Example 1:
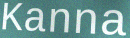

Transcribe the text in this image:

Kanna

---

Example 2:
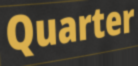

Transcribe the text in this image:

Quarter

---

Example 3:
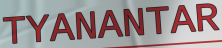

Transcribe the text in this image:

TYANANTAR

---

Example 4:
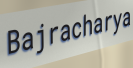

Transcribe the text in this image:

Bajracharya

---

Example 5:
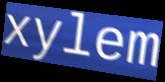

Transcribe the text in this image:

xylem